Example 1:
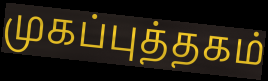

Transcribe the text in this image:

முகப்புத்தகம்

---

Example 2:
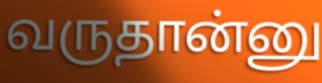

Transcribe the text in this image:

வருதான்னு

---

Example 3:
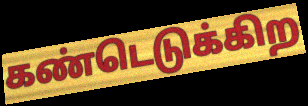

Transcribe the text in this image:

கண்டெடுக்கிற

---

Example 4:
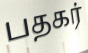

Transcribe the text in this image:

பதகர்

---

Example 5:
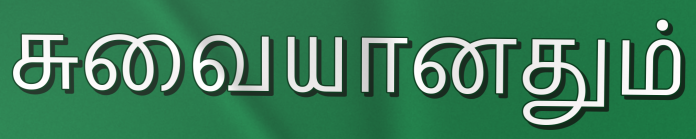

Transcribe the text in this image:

சுவையானதும்